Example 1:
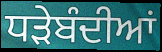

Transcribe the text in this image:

ਧੜੇਬੰਦੀਆਂ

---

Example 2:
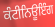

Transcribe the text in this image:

ਕੰਟੀਨਿਊਇੰਗ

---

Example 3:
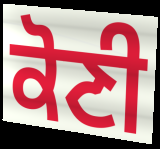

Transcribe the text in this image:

ਕੋਣੀ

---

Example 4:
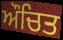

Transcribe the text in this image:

ਔਚਿਤ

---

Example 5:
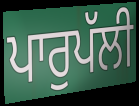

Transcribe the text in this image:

ਪਾਰੁਪੱਲੀ